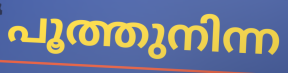
പൂത്തുനിന്ന